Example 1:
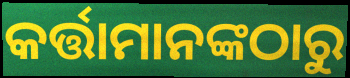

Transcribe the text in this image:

କର୍ତ୍ତାମାନଙ୍କଠାରୁ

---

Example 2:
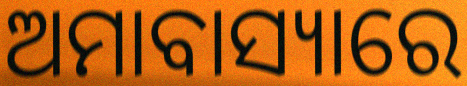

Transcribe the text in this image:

ଅମାବାସ୍ୟାରେ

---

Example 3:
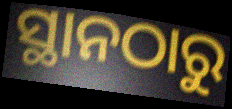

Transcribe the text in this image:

ସ୍ଥାନଠାରୁ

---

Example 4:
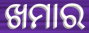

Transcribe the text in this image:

ଖମାର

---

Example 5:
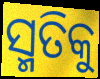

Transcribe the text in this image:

ସ୍ମତିକୁ